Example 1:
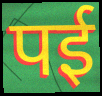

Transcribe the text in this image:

पई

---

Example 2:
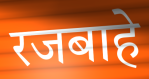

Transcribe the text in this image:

रजबाहे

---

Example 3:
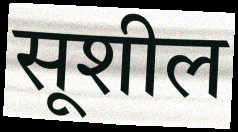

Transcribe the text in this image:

सूशील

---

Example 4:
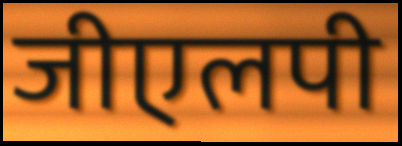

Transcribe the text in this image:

जीएलपी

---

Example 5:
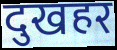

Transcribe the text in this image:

दुखहर